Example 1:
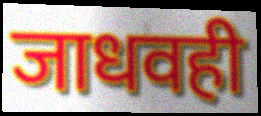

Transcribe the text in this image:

जाधवही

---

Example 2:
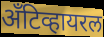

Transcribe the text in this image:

अँटिव्हायरल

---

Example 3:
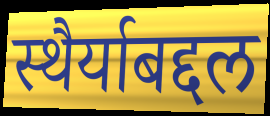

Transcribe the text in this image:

स्थैर्याबद्दल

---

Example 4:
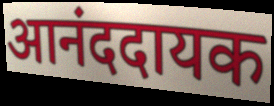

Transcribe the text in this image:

आनंददायक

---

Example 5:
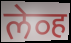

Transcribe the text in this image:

लेव्ह